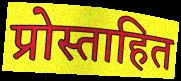
प्रोस्ताहित